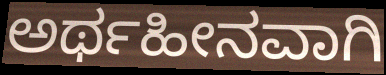
ಅರ್ಥಹೀನವಾಗಿ